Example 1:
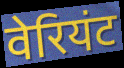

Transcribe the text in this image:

वेरियंट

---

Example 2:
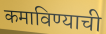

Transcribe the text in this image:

कमाविण्याची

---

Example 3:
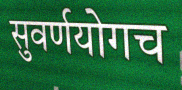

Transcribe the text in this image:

सुवर्णयोगच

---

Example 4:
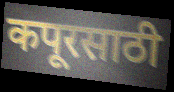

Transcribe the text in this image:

कपूरसाठी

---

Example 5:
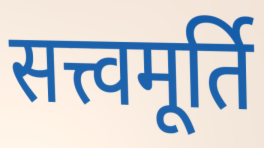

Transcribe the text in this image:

सत्त्वमूर्ति